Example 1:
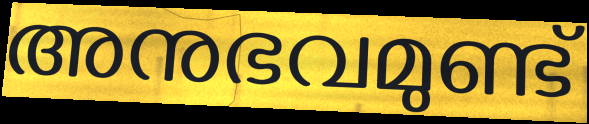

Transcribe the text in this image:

അനുഭവമുണ്ട്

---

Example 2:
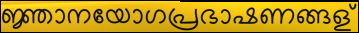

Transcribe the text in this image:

ജ്ഞാനയോഗപ്രഭാഷണങ്ങള്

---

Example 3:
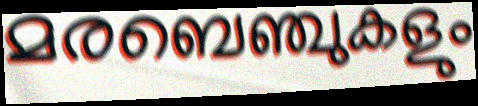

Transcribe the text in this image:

മരബെഞ്ചുകളും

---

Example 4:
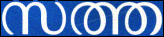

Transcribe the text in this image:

സത്ത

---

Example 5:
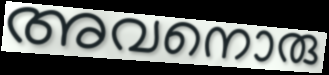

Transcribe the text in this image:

അവനൊരു